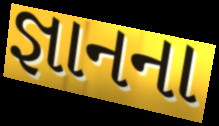
જ્ઞાનના